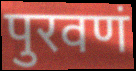
पुरवणं